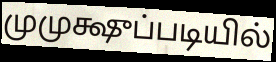
முமுக்ஷுப்படியில்